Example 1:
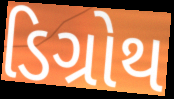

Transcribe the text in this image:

ડિગ્રોથ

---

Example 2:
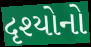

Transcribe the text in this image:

દૃશ્યોનો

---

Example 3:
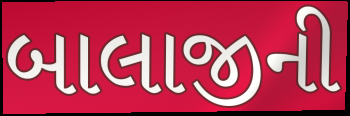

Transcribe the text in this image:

બાલાજીની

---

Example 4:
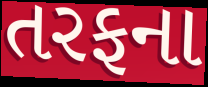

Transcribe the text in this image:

તરફના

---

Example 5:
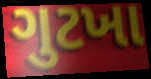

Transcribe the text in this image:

ગુટખા